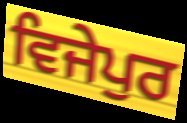
ਵਿਜੇਪੁਰ